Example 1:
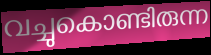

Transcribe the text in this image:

വച്ചുകൊണ്ടിരുന്ന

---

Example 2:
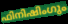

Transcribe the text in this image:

ഫിനിഷിംഗും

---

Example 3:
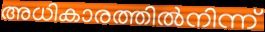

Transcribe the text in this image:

അധികാരത്തിൽനിന്ന്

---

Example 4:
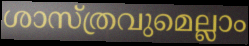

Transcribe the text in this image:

ശാസ്ത്രവുമെല്ലാം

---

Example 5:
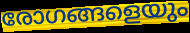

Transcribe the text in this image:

രോഗങ്ങളെയും